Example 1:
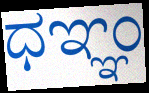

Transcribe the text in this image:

ಧಞ್ಞಂ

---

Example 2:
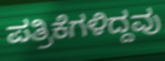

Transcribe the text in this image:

ಪತ್ರಿಕೆಗಳಿದ್ದವು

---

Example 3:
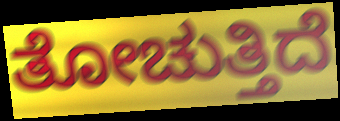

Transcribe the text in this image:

ತೋಚುತ್ತಿದೆ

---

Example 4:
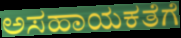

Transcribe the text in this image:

ಅಸಹಾಯಕತೆಗೆ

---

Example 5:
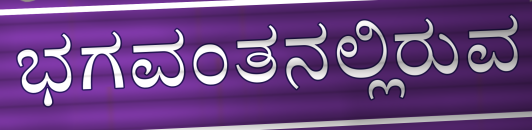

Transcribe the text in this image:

ಭಗವಂತನಲ್ಲಿರುವ